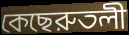
কেছেৰুতলী